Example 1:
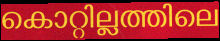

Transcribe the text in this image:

കൊറ്റില്ലത്തിലെ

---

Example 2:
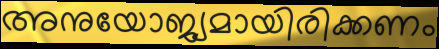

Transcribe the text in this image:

അനുയോജ്യമായിരിക്കണം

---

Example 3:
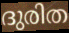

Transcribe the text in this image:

ദുരിത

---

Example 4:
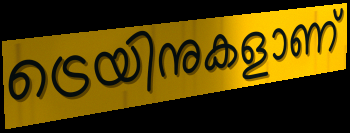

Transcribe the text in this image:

ട്രെയിനുകളാണ്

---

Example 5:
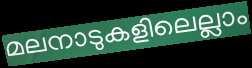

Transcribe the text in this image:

മലനാടുകളിലെല്ലാം